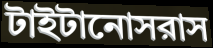
টাইটানোসরাস